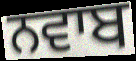
ਨਵਾਬ